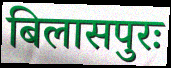
बिलासपुरः